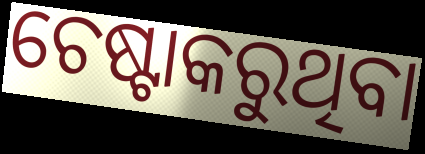
ଚେଷ୍ଟାକରୁଥିବା